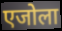
एजोला